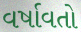
વર્ષાવતો